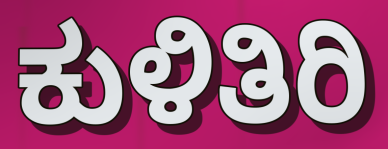
ಕುಳಿತಿರಿ